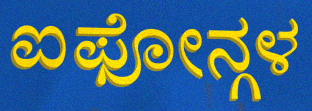
ಐಫೋನ್ಗಳ